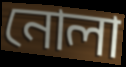
নোলা